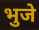
भुजे